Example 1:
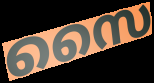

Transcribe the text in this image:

സൈ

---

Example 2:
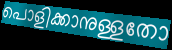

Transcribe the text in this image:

പൊളിക്കാനുള്ളതോ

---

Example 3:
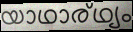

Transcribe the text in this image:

യാഥാര്ഥ്യം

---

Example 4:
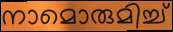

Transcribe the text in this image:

നാമൊരുമിച്ച്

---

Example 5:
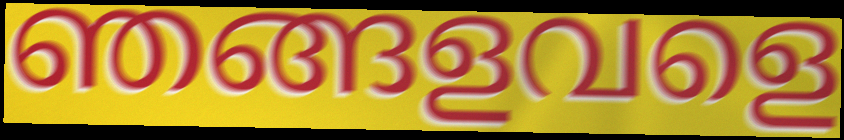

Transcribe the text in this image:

ഞങ്ങളവളെ